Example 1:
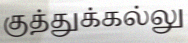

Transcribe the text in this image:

குத்துக்கல்லு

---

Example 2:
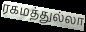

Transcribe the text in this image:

ரகமத்துல்லா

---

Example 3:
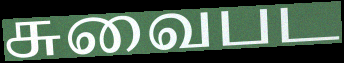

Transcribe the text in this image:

சுவைபட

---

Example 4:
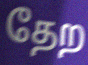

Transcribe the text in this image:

தேற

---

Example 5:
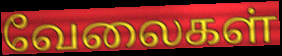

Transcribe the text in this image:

வேலைகள்